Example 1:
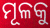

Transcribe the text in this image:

ମୂଳକୁ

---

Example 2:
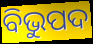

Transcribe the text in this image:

ବିଭୁପଦ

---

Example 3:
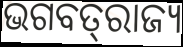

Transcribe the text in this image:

ଭଗବତ୍‌ରାଜ୍ୟ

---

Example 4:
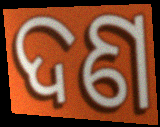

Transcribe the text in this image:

ଦଣ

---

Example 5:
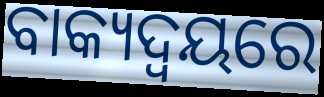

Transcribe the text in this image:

ବାକ୍ୟଦ୍ଵୟରେ